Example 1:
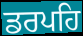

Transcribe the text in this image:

ਡਰਪਹਿ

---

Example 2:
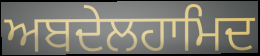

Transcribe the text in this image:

ਅਬਦੇਲਹਾਮਿਦ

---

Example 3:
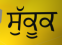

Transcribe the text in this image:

ਸੁੱਕੂਕ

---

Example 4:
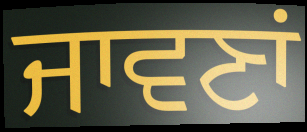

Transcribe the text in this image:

ਜਾਵਣਾਂ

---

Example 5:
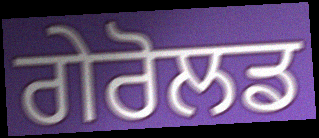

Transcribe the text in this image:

ਗੇਰੋਲਡ